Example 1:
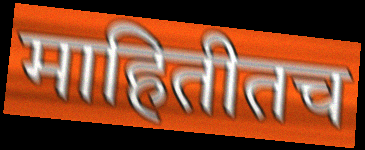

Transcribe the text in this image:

माहितीतच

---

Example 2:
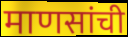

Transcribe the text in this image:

माणसांची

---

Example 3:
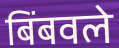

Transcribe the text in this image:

बिंबवले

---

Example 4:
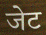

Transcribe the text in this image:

जेट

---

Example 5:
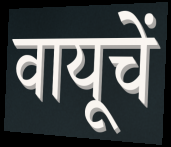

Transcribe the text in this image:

वायूचें